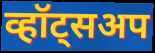
व्हॉट्सअप